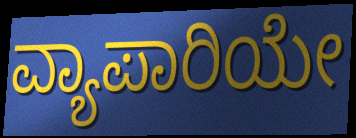
ವ್ಯಾಪಾರಿಯೇ